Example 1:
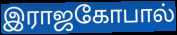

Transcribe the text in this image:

இராஜகோபால்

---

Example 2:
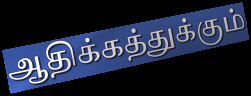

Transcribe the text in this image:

ஆதிக்கத்துக்கும்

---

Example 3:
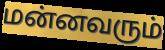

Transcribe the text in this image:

மன்னவரும்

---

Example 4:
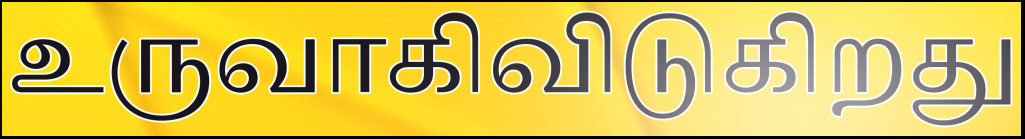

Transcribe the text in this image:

உருவாகிவிடுகிறது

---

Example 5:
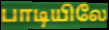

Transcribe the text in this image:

பாடியிலே